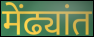
मेंढ्यांत